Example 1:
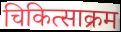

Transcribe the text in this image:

चिकित्साक्रम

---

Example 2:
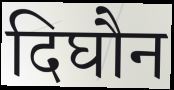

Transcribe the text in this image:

दिघौन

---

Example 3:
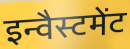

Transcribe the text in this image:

इन्वैस्टमेंट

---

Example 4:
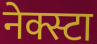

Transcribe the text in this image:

नेक्स्टा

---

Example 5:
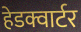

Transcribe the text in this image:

हेडक्वार्टर